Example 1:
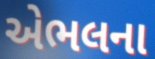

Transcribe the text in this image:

એભલના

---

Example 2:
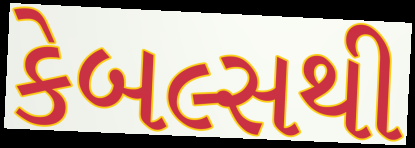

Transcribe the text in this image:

કેબલ્સથી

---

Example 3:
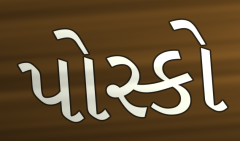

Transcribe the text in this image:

પોસ્કો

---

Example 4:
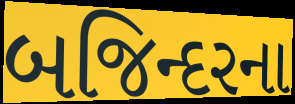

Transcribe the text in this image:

બજિન્દરના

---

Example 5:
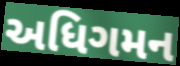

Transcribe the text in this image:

અધિગમન